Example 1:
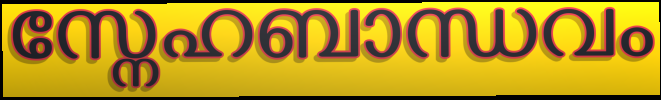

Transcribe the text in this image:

സ്നേഹബാന്ധവം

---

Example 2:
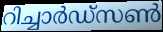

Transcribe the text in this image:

റിച്ചാർഡ്സൺ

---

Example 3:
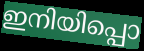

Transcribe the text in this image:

ഇനിയിപ്പൊ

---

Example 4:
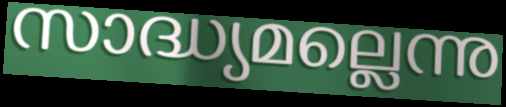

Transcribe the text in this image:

സാദ്ധ്യമല്ലെന്നു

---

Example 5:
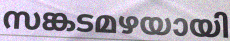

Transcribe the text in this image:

സങ്കടമഴയായി